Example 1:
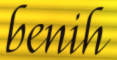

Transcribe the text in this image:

benih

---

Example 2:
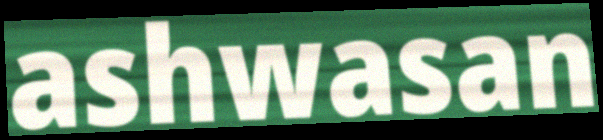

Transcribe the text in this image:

ashwasan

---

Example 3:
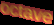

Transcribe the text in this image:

octave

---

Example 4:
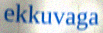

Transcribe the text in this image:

ekkuvaga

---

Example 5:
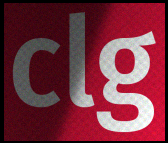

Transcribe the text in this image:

clg